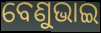
ବେଣୁଭାଇ